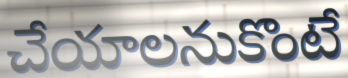
చేయాలనుకొంటే